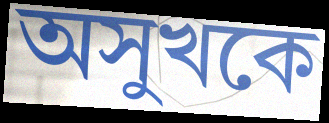
অসুখকে